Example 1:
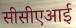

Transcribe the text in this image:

सीसीएआई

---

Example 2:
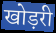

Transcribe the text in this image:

खोड़री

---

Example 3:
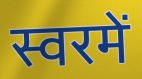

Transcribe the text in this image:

स्वरमें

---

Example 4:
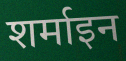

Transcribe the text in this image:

शर्माइन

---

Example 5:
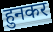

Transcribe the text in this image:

हुनकर